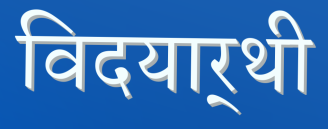
विदयार्थी